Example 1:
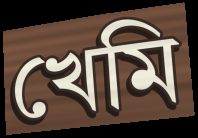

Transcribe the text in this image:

খেমি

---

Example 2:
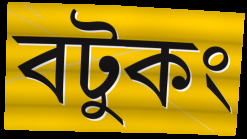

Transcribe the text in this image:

বটুকং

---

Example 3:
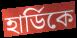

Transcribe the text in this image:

হার্ডিকে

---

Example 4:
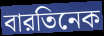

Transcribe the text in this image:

বারতিনেক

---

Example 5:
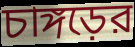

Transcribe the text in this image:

চাঙ্গড়ের